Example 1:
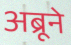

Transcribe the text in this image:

अब्रूने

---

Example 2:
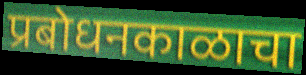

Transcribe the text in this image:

प्रबोधनकाळाचा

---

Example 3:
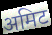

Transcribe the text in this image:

अमिट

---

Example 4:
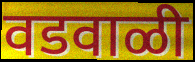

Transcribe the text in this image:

वडवाळी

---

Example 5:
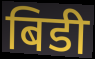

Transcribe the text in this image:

बिडी